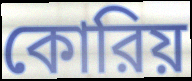
কোরিয়